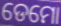
ଡେମୋ